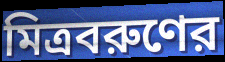
মিত্রবরুণের